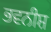
ਭਵਨੀਸ਼